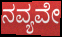
ನವ್ಯವೇ